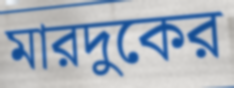
মারদুকের